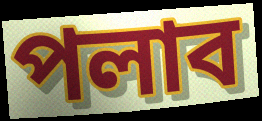
পলাব